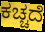
ಕಚ್ಚದೆ